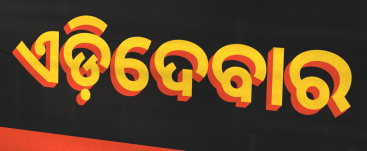
ଏଡ଼ିଦେବାର